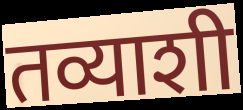
तव्याशी